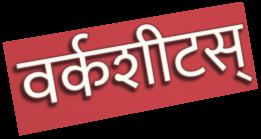
वर्कशीटस्